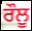
ਰੌਲੂ